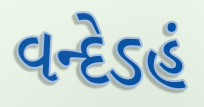
વન્દેઽહં